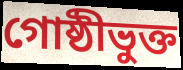
গোষ্ঠীভুক্ত